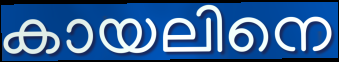
കായലിനെ